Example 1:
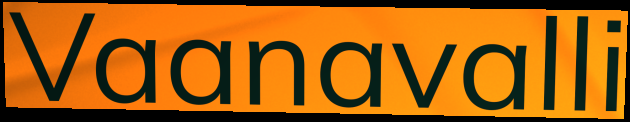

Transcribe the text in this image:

Vaanavalli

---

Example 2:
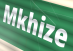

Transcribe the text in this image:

Mkhize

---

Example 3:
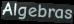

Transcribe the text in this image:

Algebras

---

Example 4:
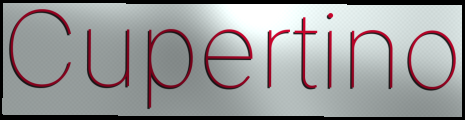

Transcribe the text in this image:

Cupertino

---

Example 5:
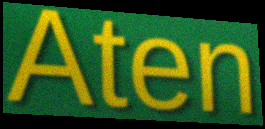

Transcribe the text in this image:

Aten